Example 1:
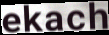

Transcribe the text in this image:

ekach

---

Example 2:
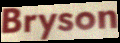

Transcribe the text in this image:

Bryson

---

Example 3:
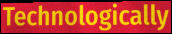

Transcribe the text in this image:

Technologically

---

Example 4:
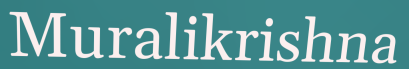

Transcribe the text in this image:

Muralikrishna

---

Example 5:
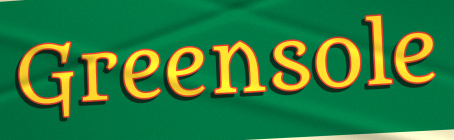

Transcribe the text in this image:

Greensole